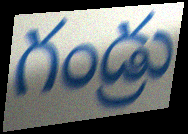
గండ్రు